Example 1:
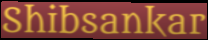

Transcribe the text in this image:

Shibsankar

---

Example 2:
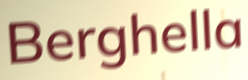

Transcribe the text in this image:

Berghella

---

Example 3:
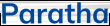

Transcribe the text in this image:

Paratha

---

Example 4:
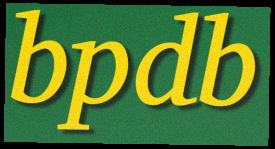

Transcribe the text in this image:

bpdb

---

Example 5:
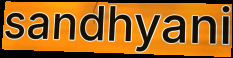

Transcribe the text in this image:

sandhyani